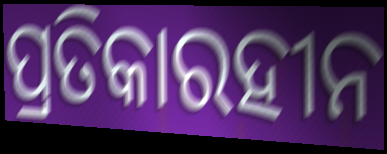
ପ୍ରତିକାରହୀନ